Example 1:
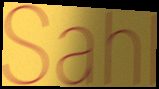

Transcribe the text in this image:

Sahl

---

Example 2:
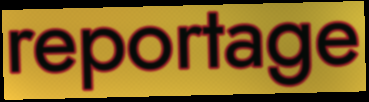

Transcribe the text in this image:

reportage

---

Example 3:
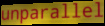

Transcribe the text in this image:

unparallel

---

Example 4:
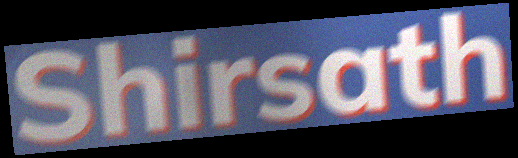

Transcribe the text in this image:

Shirsath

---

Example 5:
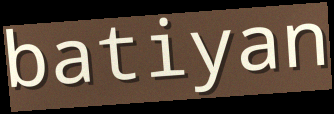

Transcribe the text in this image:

batiyan